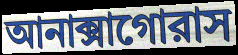
আনাক্সাগোরাস